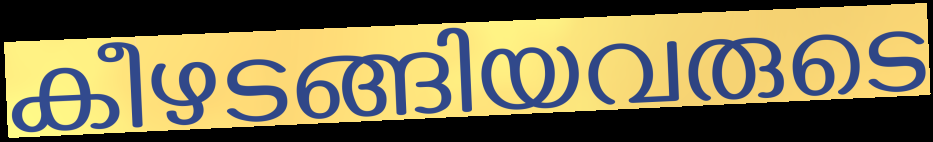
കീഴടങ്ങിയവരുടെ